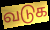
வடுக